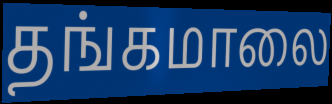
தங்கமாலை